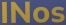
INos